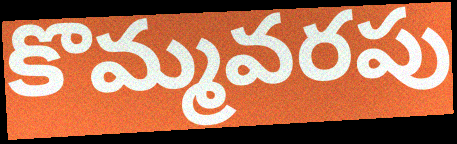
కొమ్మవరపు